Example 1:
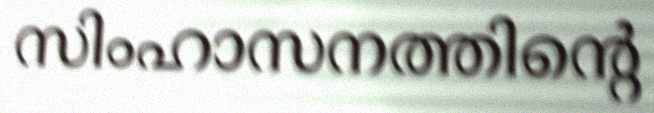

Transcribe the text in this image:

സിംഹാസനത്തിന്റെ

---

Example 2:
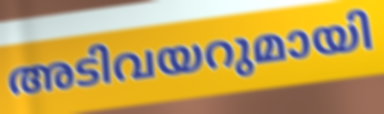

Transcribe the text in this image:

അടിവയറുമായി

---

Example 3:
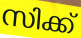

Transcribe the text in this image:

സിക്ക്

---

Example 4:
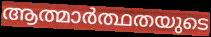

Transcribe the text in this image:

ആത്മാർത്ഥതയുടെ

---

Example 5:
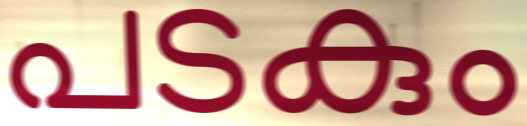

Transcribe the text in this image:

പടകും